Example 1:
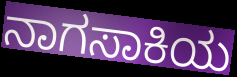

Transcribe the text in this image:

ನಾಗಸಾಕಿಯ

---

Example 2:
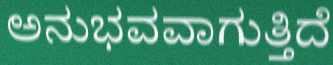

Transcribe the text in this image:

ಅನುಭವವಾಗುತ್ತಿದೆ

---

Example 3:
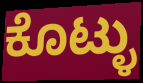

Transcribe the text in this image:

ಕೊಟ್ಳು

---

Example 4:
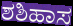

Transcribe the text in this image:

ಶಶಿಹಾಸ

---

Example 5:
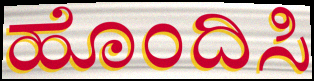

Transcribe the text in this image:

ಹೊಂದಿಸಿ